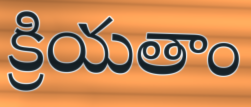
క్రియతాం